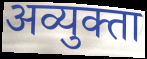
अव्युक्ता